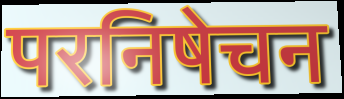
परनिषेचन